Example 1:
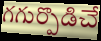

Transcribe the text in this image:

గగుర్పొడిచే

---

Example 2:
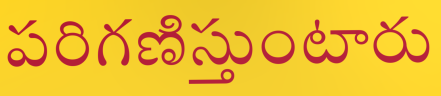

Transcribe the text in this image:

పరిగణిస్తుంటారు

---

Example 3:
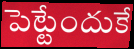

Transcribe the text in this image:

పెట్టేందుకే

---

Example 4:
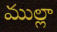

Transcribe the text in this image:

ముల్లా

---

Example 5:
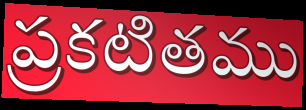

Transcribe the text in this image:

ప్రకటితము